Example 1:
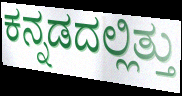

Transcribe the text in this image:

ಕನ್ನಡದಲ್ಲಿತ್ತು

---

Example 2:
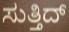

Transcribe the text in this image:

ಸುತ್ತಿದ್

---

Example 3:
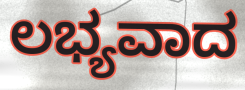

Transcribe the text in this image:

ಲಭ್ಯವಾದ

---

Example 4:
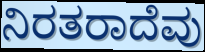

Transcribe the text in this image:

ನಿರತರಾದೆವು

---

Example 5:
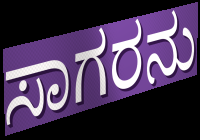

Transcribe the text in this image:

ಸಾಗರನು